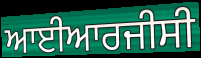
ਆਈਆਰਜੀਸੀ